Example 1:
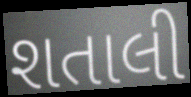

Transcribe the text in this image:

શતાલી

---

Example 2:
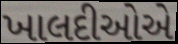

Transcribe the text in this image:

ખાલદીઓએ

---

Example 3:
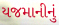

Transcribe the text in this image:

યજમાનીનું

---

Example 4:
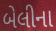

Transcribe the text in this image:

બેલીના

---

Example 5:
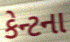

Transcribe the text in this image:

કેન્ટના